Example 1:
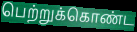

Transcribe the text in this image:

பெற்றுக்கொண்ட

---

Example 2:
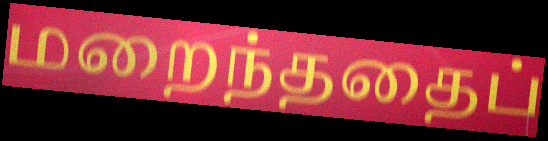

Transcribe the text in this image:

மறைந்ததைப்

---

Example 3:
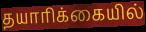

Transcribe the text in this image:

தயாரிக்கையில்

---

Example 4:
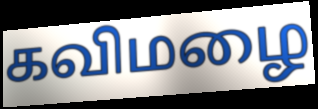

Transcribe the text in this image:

கவிமழை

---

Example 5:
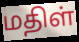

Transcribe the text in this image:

மதிள்